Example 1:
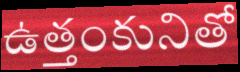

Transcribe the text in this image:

ఉత్తంకునితో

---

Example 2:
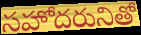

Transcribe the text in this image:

సహోదరునితో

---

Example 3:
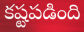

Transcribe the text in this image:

కష్టపడింది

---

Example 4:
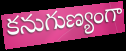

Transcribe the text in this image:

కనుగుణ్యంగా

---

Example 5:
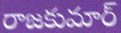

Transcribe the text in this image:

రాజకుమార్